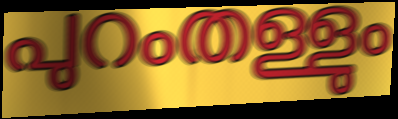
പുറംതള്ളും